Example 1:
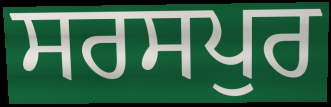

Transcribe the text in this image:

ਸਰਸਪੁਰ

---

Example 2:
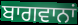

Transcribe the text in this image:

ਬਾਗਵਾਨਾਂ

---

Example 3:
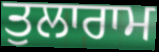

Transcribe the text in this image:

ਤੁਲਾਰਾਮ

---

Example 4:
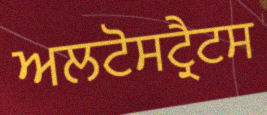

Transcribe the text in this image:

ਅਲਟੋਸਟ੍ਰੈਟਸ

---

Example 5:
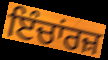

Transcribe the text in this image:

ਇੰਚਾਂਰਜ਼